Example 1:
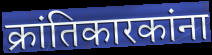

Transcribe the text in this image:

क्रांतिकारकांना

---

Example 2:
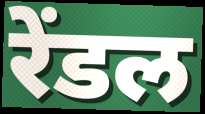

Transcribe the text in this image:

रेंडल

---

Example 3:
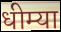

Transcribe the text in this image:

धीम्या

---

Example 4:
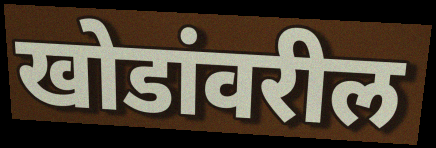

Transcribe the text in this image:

खोडांवरील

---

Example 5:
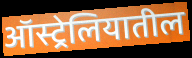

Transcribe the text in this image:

ऑस्ट्रेलियातील